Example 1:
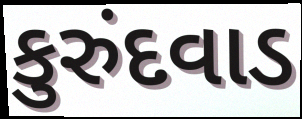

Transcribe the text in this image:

કુરુંદવાડ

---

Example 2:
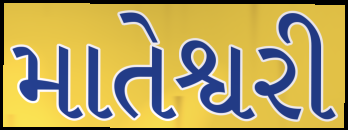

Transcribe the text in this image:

માતેશ્વરી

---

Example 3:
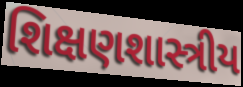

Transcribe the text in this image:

શિક્ષણશાસ્ત્રીય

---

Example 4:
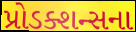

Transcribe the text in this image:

પ્રોડક્શન્સના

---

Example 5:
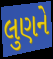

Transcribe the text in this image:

લુણને